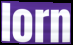
lorn